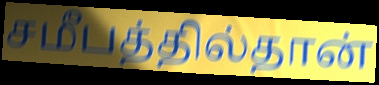
சமீபத்தில்தான்